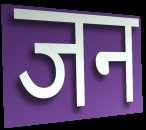
जन